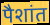
पैशांत